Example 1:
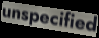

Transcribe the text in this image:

unspecified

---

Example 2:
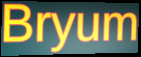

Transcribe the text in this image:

Bryum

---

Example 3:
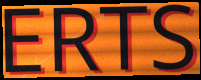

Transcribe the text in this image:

ERTS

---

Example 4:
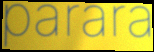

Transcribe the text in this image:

parara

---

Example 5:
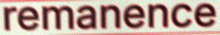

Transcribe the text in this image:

remanence